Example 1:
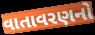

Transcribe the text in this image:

વાતાવરણનો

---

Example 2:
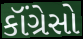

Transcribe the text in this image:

કૉંગ્રેસો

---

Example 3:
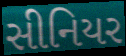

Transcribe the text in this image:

સીનિયર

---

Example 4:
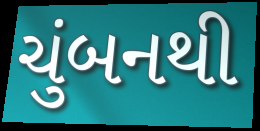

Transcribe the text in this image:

ચુંબનથી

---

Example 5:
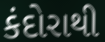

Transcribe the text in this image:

કંદોરાથી